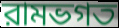
রামভগত